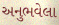
અનુભવેલા